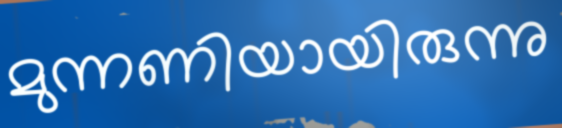
മുന്നണിയായിരുന്നു